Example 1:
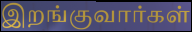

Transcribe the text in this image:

இறங்குவார்கள்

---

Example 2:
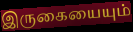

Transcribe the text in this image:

இருகையையும்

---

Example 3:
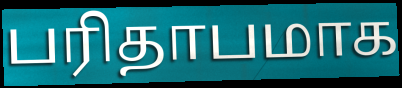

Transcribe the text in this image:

பரிதாபமாக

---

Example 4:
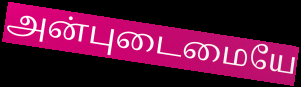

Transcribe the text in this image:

அன்புடைமையே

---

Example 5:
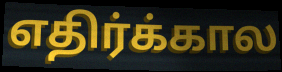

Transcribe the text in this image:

எதிர்க்கால